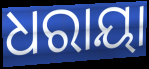
ଧରାୟା